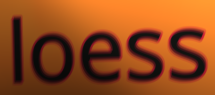
loess